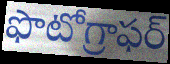
ఫొటోగ్రాఫర్